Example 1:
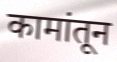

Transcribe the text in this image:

कामांतून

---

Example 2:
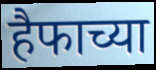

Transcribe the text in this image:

हैफाच्या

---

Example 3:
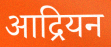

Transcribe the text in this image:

आद्रियन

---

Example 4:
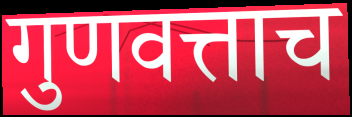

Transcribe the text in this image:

गुणवत्ताच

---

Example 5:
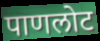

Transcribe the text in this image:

पाणलोट